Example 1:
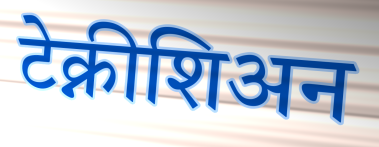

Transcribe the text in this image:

टेक्नीशिअन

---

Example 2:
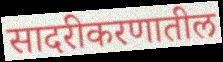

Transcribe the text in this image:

सादरीकरणातील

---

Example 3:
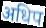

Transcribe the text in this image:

अधिप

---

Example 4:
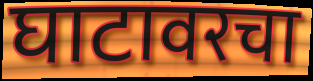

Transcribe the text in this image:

घाटावरचा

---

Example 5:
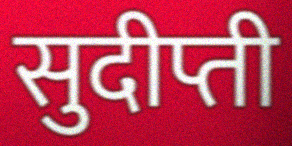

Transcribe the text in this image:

सुदीप्ती